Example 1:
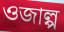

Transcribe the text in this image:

ওজাল্প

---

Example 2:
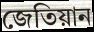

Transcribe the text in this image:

জেতিয়ান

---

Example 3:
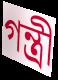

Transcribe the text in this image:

গন্ত্রী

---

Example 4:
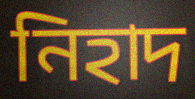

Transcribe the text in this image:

নিহাদ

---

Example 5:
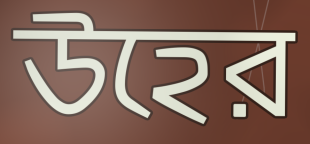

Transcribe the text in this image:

উহের